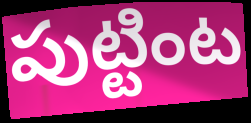
పుట్టింట